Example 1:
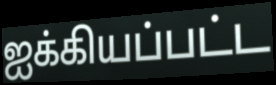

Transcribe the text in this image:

ஐக்கியப்பட்ட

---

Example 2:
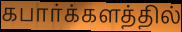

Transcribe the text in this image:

கபார்க்களத்தில்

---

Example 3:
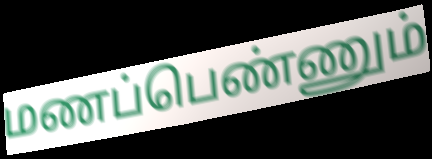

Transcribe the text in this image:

மணப்பெண்ணும்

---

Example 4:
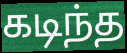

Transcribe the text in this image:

கடிந்த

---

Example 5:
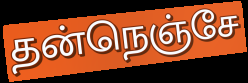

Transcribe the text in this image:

தன்நெஞ்சே